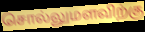
சொல்லுமளவிற்கு